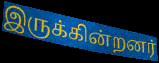
இருக்கின்றனர்